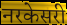
नरकेसरी